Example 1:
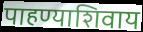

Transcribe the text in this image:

पाहण्याशिवाय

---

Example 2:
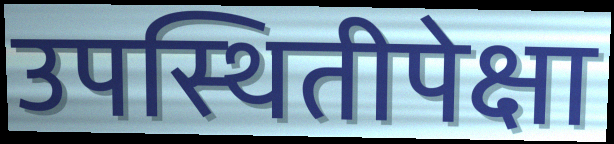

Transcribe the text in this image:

उपस्थितीपेक्षा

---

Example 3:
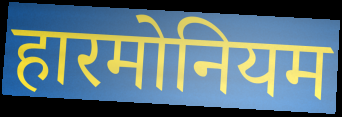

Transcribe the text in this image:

हारमोनियम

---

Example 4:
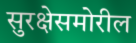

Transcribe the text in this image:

सुरक्षेसमोरील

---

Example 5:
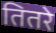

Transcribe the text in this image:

तितरे